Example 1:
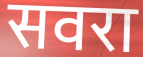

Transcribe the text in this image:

सवरा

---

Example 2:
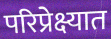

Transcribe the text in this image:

परिप्रेक्ष्यात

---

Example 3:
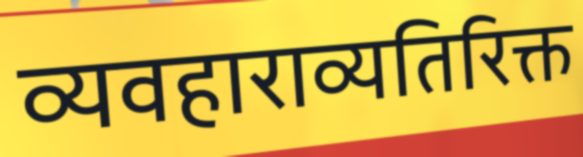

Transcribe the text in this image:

व्यवहाराव्यतिरिक्त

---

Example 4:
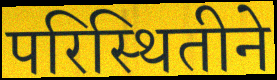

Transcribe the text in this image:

परिस्थितीने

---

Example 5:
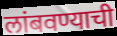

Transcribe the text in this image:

लांबवण्याची